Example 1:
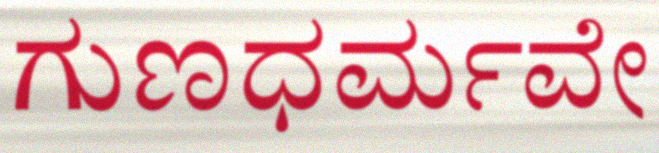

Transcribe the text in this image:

ಗುಣಧರ್ಮವೇ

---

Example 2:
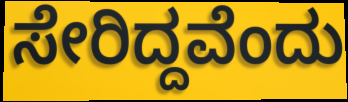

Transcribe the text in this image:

ಸೇರಿದ್ದವೆಂದು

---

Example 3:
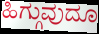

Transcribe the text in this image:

ಹಿಗ್ಗುವುದೂ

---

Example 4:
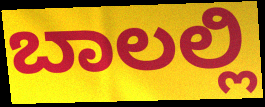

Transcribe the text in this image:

ಬಾಲಲ್ಲಿ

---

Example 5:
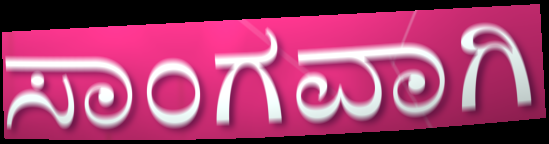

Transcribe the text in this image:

ಸಾಂಗವಾಗಿ